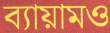
ব্যায়ামও